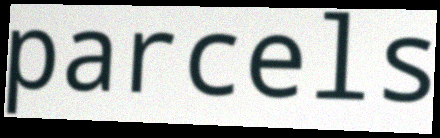
parcels